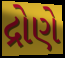
દ્રોણે